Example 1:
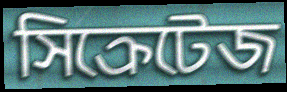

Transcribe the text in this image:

সিক্রেটেজ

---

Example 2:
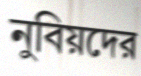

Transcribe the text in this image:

নুবিয়দের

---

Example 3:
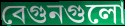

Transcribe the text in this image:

বেগুনগুলো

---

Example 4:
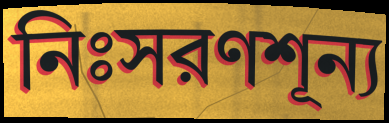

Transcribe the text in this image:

নিঃসরণশূন্য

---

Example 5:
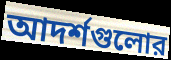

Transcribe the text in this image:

আদর্শগুলোর